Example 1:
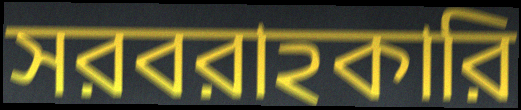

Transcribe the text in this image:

সরবরাহকারি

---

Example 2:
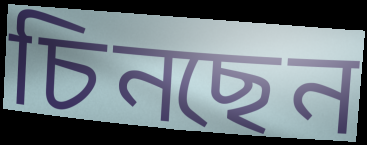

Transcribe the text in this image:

চিনছেন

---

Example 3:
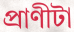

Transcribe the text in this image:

প্রাণীটা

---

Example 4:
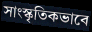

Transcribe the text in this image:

সাংস্কৃতিকভাবে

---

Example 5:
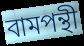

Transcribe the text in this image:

বামপন্থী